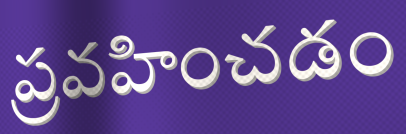
ప్రవహించడం